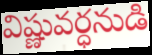
విష్ణువర్ధనుడి